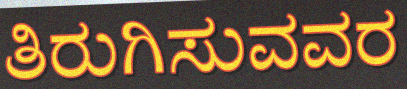
ತಿರುಗಿಸುವವರ